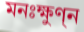
মনঃক্ষুণ্ন